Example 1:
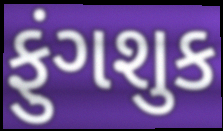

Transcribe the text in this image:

ફુંગશુક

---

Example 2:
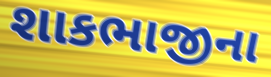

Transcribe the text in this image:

શાકભાજીના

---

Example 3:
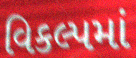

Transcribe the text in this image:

વિકલ્પમાં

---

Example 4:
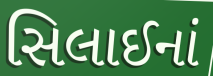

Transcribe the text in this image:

સિલાઈનાં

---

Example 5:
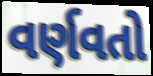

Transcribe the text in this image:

વર્ણવતો